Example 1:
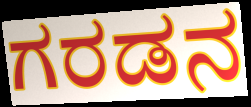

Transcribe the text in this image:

ಗರಡನ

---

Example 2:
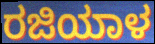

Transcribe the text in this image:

ರಜಿಯಾಳ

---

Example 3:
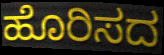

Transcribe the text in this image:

ಹೊರಿಸದ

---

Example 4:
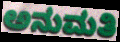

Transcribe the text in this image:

ಅನುಮತಿ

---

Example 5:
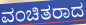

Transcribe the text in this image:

ವಂಚಿತರಾದ